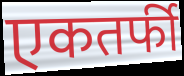
एकतर्फी